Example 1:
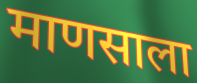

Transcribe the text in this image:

माणसाला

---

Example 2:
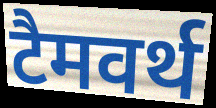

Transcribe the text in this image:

टैमवर्थ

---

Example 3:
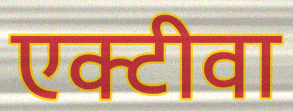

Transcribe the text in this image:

एक्टीवा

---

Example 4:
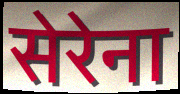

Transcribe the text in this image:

सेरेना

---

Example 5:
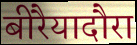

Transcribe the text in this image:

बीरैयादौरा